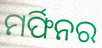
ମର୍ଫିନର